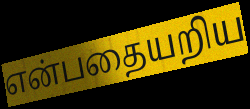
என்பதையறிய